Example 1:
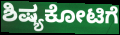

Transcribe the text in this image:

ಶಿಷ್ಯಕೋಟಿಗೆ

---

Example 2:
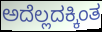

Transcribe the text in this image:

ಅದೆಲ್ಲದಕ್ಕಿಂತ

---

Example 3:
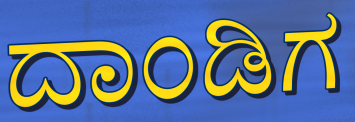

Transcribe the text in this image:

ದಾಂಡಿಗ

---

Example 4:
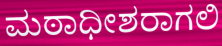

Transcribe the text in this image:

ಮಠಾಧೀಶರಾಗಲಿ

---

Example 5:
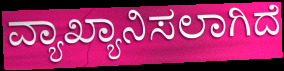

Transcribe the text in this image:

ವ್ಯಾಖ್ಯಾನಿಸಲಾಗಿದೆ